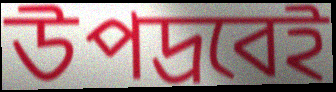
উপদ্রবেই